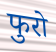
फुरो